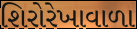
શિરોરેખાવાળા